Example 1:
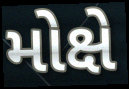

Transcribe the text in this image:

મોક્ષે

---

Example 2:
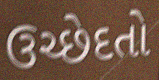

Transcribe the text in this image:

ઉચ્છેદતો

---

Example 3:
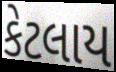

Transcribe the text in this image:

કેટલાય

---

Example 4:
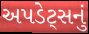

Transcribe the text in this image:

અપડેટ્સનું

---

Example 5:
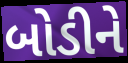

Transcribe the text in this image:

બોડીને